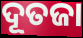
ଦୂତଜା